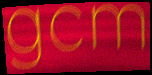
gcm